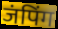
जंपिंग